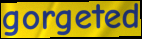
gorgeted